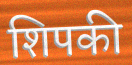
शिपकी